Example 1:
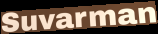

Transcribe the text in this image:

Suvarman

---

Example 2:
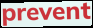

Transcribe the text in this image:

prevent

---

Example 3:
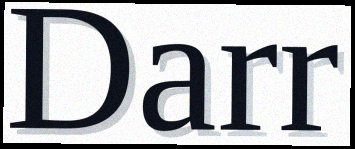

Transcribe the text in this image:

Darr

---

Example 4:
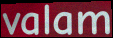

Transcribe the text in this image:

valam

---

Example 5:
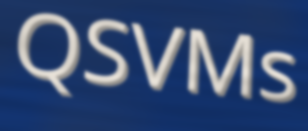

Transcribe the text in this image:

QSVMs